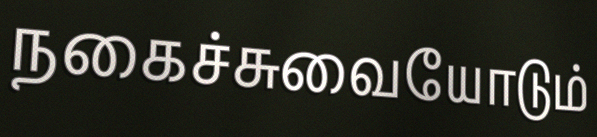
நகைச்சுவையோடும்